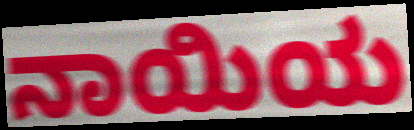
ನಾಯಿಯ